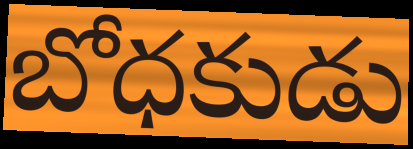
బోధకుడు